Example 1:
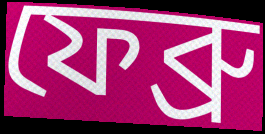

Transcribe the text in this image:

ফেব্রু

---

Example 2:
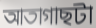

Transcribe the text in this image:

আতাগাছটা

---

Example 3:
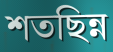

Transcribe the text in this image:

শতছিন্ন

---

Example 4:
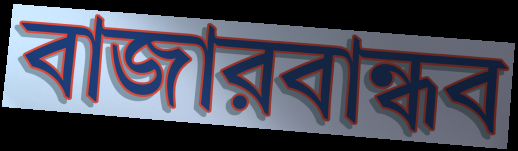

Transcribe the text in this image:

বাজারবান্ধব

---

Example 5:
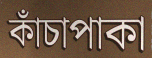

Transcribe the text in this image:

কাঁচাপাকা